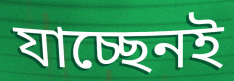
যাচ্ছেনই